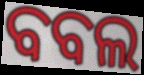
ବବଲ